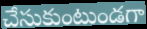
చేసుకుంటుండగా